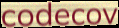
codecov